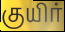
குயிர்